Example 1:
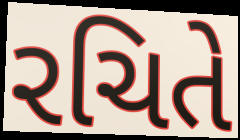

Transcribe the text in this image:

રચિતે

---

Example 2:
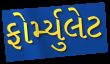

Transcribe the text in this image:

ફોર્મ્યુલેટ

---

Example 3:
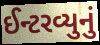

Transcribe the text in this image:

ઈન્ટરવ્યુનું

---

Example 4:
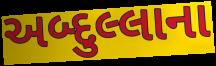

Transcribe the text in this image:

અબ્દુલ્લાના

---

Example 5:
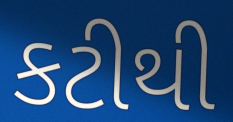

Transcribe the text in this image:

કટીથી